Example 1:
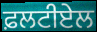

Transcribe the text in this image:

ਫ਼ਲਟੀਏਲ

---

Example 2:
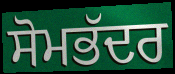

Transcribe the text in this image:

ਸੋਮਭੱਦਰ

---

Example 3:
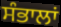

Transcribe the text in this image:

ਸੰਭਾਲਾਂ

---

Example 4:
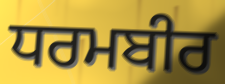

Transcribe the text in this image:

ਧਰਮਬੀਰ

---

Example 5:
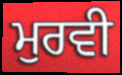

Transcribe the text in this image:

ਮੁਰਵੀ